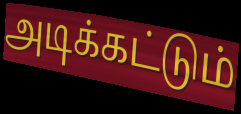
அடிக்கட்டும்